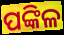
ପଙ୍କିଳ